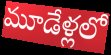
మూడేళ్లలో